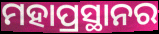
ମହାପ୍ରସ୍ଥାନର